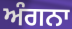
ਅੰਗਨਾ